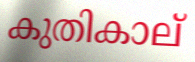
കുതികാല്